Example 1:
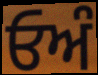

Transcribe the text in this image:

ਓਅੰ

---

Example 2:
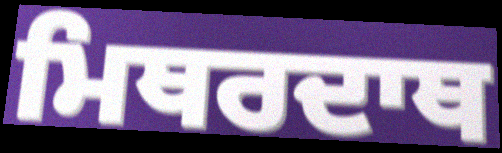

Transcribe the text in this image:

ਮਿਥਰਦਾਥ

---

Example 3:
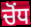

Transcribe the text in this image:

ਚੋਂਧ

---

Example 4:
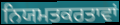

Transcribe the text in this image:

ਨਿਯਮਤਕਰਤਾਵਾਂ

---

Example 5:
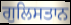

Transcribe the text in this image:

ਗੁਲਿਸਤਾਨ